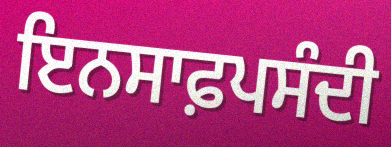
ਇਨਸਾਫ਼ਪਸੰਦੀ